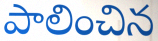
పాలించిన